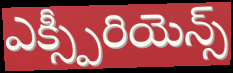
ఎక్స్పీరియెన్స్